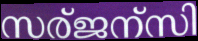
സര്ജന്സി